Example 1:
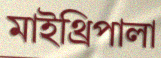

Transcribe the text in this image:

মাইথ্রিপালা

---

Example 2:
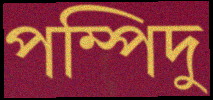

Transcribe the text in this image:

পম্পিদু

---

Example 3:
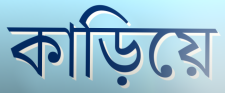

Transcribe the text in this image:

কাড়িয়ে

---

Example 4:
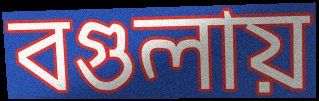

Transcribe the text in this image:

বগুলায়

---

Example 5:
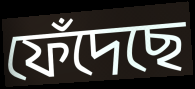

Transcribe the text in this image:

ফেঁদেছে